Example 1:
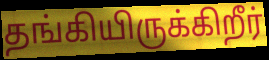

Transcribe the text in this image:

தங்கியிருக்கிறீர்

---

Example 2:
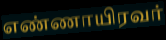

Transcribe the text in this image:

எண்ணாயிரவர்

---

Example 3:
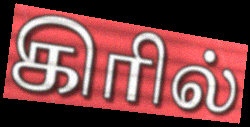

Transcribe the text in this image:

கிரில்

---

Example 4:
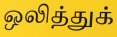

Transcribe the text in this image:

ஒலித்துக்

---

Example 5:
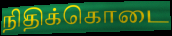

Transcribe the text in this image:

நிதிக்கொடை